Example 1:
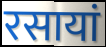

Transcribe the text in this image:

रसायां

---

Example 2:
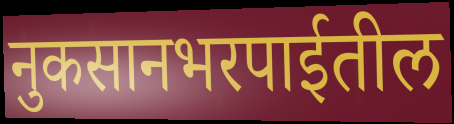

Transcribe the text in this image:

नुकसानभरपाईतील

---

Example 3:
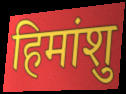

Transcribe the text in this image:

हिमांशु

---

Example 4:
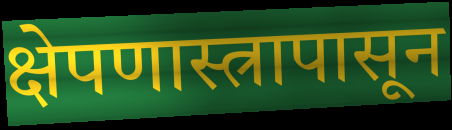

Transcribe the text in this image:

क्षेपणास्त्रापासून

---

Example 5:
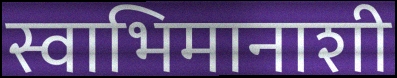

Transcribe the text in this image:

स्वाभिमानाशी